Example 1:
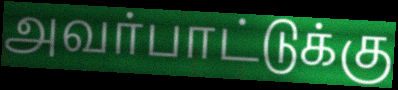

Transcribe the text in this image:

அவர்பாட்டுக்கு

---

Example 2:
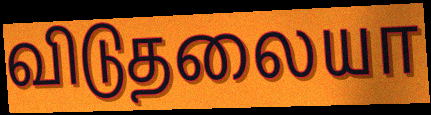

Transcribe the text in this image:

விடுதலையா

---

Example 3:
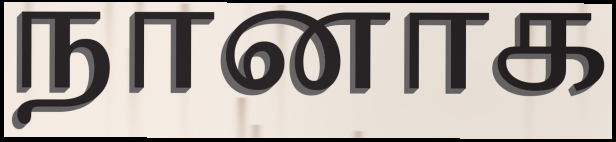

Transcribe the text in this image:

நானாக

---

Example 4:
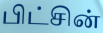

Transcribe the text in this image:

பிட்சின்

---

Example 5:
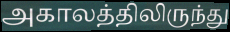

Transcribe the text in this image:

அகாலத்திலிருந்து